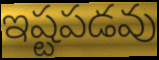
ఇష్టపడవు